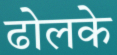
ढोलके